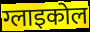
ग्लाइकोल